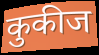
कुकीज